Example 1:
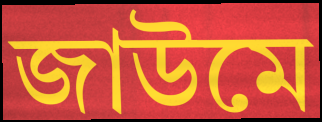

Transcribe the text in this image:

জাউমে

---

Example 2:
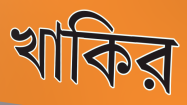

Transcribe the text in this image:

খাকির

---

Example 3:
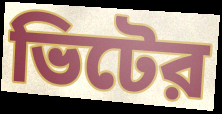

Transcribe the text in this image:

ভিটের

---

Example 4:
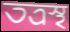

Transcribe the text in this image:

তত্রস্থ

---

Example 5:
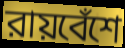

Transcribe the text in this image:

রায়বেঁশে